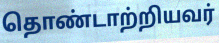
தொண்டாற்றியவர்